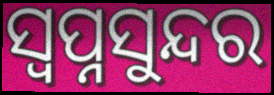
ସ୍ୱପ୍ନସୁନ୍ଦର